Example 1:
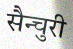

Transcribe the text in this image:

सैन्चुरी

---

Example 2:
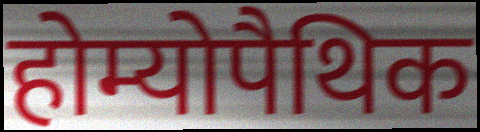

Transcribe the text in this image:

होम्योपैथिक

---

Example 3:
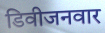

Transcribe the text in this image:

डिवीजनवार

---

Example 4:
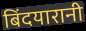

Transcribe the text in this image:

बिंदयारानी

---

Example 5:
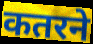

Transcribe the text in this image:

कतरने